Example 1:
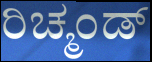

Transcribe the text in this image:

ರಿಚ್ಮಂಡ್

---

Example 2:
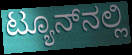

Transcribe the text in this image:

ಟ್ಯೂನ್‌ನಲ್ಲಿ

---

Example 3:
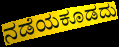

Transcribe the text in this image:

ನಡೆಯಕೂಡದು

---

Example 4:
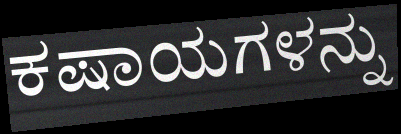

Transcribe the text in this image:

ಕಷಾಯಗಳನ್ನು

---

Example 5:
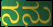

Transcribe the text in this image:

ನನು